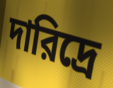
দারিদ্রে